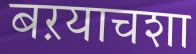
बऱयाचशा